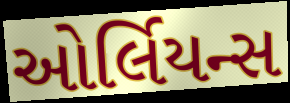
ઓર્લિયન્સ